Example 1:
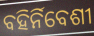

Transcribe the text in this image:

ବହିର୍ନିବେଶୀ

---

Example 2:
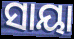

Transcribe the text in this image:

ସାୟା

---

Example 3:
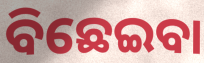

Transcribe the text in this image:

ବିଛେଇବା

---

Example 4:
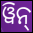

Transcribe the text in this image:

ୱିନ୍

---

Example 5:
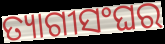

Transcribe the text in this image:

ତ୍ୟାଗୀସଂଘର